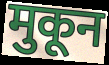
मुकून